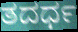
ತದರ್ಧ